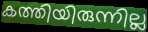
കത്തിയിരുന്നില്ല